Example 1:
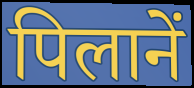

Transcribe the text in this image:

पिलानें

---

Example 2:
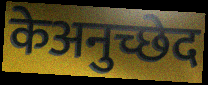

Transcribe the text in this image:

केअनुच्छेद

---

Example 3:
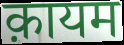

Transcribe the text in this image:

क़ायम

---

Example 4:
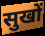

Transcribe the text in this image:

सुखों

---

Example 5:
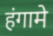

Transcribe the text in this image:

हंगामे